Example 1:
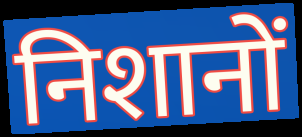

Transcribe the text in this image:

निशानों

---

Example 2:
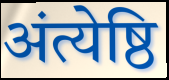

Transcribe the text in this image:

अंत्येष्ठि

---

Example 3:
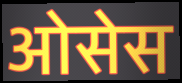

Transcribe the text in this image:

ओसेस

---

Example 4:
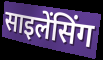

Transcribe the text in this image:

साइलेंसिंग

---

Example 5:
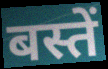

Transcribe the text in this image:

बस्तें